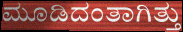
ಮೂಡಿದಂತಾಗಿತ್ತು